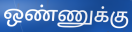
ஒண்ணுக்கு